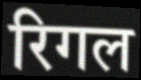
रिगल